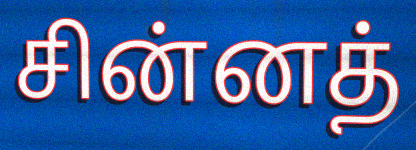
சின்னத்